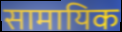
सामायिक